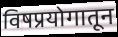
विषप्रयोगातून